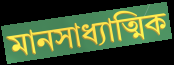
মানসাধ্যাত্মিক